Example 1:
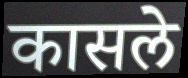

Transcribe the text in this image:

कासले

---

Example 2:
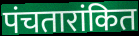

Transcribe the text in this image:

पंचतारांकित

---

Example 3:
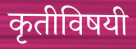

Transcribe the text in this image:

कृतीविषयी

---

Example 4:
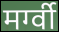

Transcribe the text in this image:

मर्ग्वी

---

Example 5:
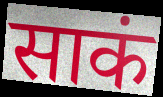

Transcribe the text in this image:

साकं